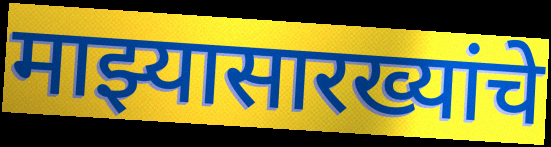
माझ्यासारख्यांचे